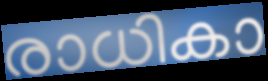
രാധികാ